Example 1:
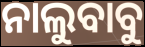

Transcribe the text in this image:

ନାଲୁବାବୁ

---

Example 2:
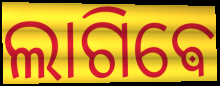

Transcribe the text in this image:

ଲାଗିଵେ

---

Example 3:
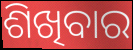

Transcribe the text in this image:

ଶିଖିବାର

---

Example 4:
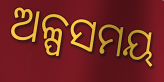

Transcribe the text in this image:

ଅଳ୍ପସମୟ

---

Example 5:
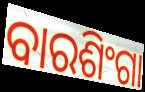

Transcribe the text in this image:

ବାରଶିଂଗା